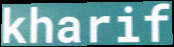
kharif